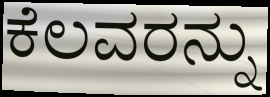
ಕೆಲವರನ್ನು